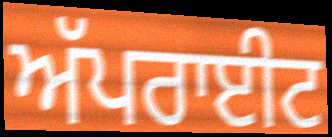
ਅੱਪਰਾਈਟ